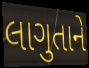
લાગુતાને